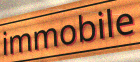
immobile